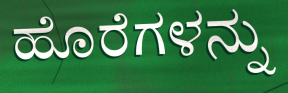
ಹೊರೆಗಳನ್ನು